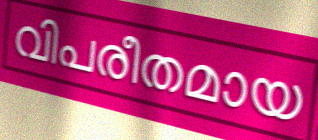
വിപരീതമായ